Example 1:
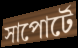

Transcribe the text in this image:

সাপোর্টে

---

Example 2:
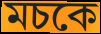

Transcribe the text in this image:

মচকে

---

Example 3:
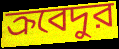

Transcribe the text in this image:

ক্রবেদুর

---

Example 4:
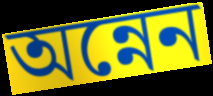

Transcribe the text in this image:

অন্নেন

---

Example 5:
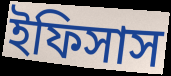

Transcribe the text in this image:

ইফিসাস